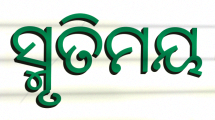
ସ୍ମୃତିମୟ